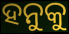
ହନୁକୁ